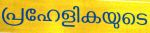
പ്രഹേളികയുടെ